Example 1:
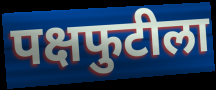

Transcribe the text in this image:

पक्षफुटीला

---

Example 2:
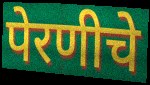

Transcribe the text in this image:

पेरणीचे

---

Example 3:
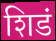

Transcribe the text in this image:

शिडं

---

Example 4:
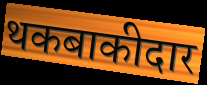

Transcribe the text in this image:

थकबाकीदार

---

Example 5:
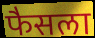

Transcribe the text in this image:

फैसला